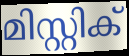
മിസ്റ്റിക്